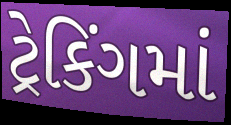
ટ્રેકિંગમાં